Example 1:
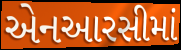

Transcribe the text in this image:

એનઆરસીમાં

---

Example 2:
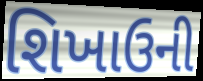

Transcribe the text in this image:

શિખાઉની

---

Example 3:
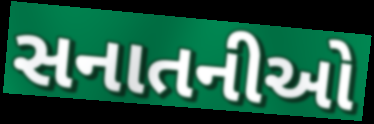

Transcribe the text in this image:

સનાતનીઓ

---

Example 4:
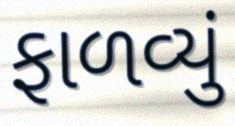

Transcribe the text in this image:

ફાળવ્યું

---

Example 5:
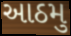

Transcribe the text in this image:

આઠમુ